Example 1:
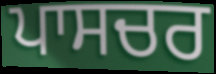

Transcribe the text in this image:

ਪਾਸਚਰ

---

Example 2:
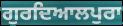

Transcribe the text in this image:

ਗੁਰਦਿਆਲਪੁਰਾ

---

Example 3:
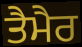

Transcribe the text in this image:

ਤੈਮੈਰ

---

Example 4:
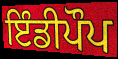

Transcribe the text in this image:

ਇੰਡੀਪੌਪ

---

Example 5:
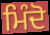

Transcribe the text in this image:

ਮਿੰਦੋ